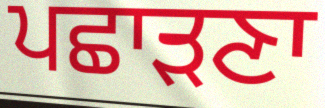
ਪਛਾੜਣਾ